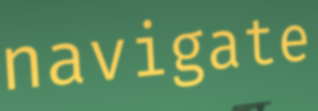
navigate